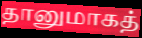
தானுமாகத்